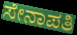
ಸೇನಾಪತಿ